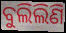
ବୁଲିଲିଣି